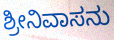
ಶ್ರೀನಿವಾಸನು